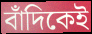
বাঁদিকেই